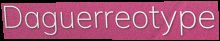
Daguerreotype